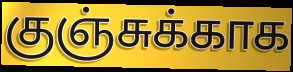
குஞ்சுக்காக